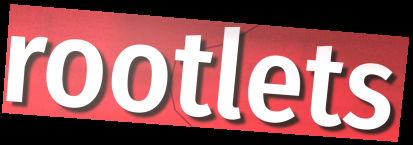
rootlets